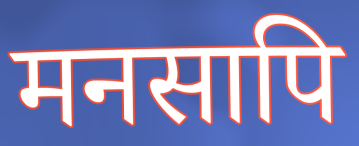
मनसापि